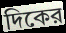
দিকের